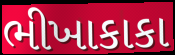
ભીખાકાકા